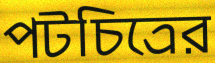
পটচিত্রের